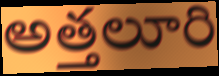
అత్తలూరి